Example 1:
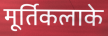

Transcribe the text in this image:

मूर्तिकलाके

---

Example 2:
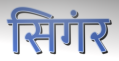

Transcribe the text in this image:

सिगंर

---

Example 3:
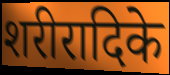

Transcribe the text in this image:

शरीरादिके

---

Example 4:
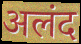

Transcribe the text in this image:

अलंद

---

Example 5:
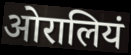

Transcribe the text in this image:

ओरालियं